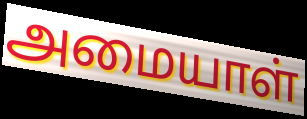
அமையாள்